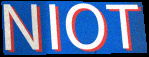
NIOT